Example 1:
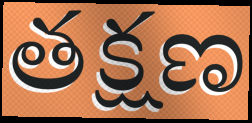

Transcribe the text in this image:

తక్షణ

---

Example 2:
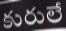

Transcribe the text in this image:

కురులే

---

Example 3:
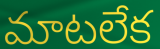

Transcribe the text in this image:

మాటలేక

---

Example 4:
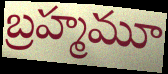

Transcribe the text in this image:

బ్రహ్మమూ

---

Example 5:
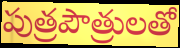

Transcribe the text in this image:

పుత్రపౌత్రులతో